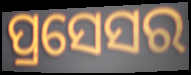
ପ୍ରସେସର